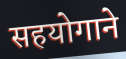
सहयोगाने